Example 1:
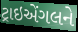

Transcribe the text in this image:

ટ્રાઇએંગલને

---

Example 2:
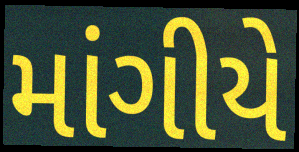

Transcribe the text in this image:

માંગીયે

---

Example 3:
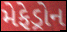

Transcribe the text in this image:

મેફેડ્રોન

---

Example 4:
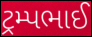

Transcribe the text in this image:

ટ્રમ્પભાઈ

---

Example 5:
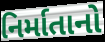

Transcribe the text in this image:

નિર્માતાનો